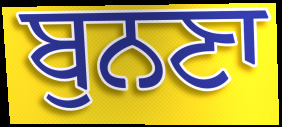
ਬੁਨਣਾ